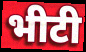
भीटी